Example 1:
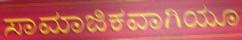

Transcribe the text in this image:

ಸಾಮಾಜಿಕವಾಗಿಯೂ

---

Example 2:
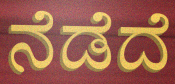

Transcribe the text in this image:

ನೆಡೆದೆ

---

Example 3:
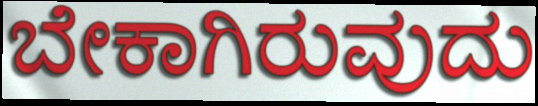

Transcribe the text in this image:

ಬೇಕಾಗಿರುವುದು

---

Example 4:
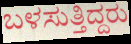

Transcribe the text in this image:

ಬಳಸುತ್ತಿದ್ದರು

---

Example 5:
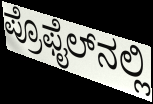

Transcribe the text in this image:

ಪ್ರೊಫೈಲ್‌ನಲ್ಲಿ